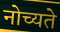
नोच्यते